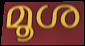
മൂശ